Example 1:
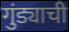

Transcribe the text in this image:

गुंड्याची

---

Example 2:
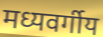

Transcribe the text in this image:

मध्यवर्गीय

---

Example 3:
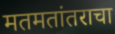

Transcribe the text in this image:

मतमतांतराचा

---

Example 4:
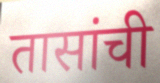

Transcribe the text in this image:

तासांची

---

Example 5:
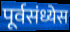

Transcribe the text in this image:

पूर्वसंध्येस